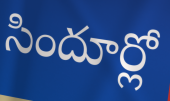
సిందూర్లో